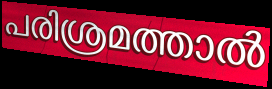
പരിശ്രമത്താൽ